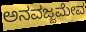
ಅನವಜ್ಜಮೇವ